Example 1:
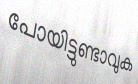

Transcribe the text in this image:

പോയിട്ടുണ്ടാവുക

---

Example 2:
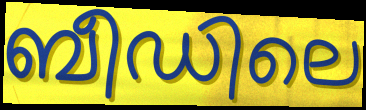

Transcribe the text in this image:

ബീഡിലെ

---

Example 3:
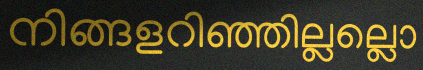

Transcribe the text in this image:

നിങ്ങളറിഞ്ഞില്ലല്ലൊ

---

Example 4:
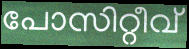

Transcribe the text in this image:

പോസിറ്റീവ്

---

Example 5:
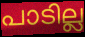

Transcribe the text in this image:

പാടില്ല